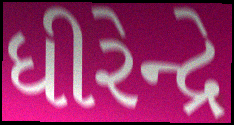
ધીરેન્દ્રે